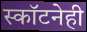
स्कॉटनेही